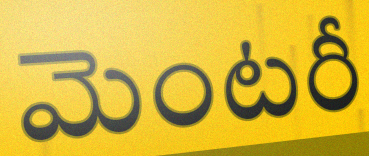
మెంటరీ